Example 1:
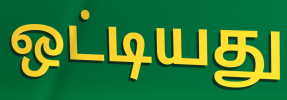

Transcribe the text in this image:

ஒட்டியது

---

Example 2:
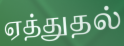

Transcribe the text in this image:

ஏத்துதல்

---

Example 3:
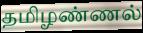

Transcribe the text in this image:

தமிழண்ணல்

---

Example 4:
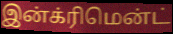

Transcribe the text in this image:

இன்க்ரிமென்ட்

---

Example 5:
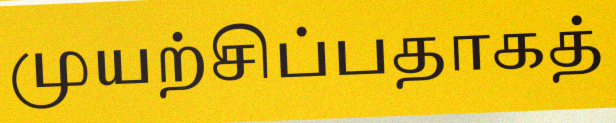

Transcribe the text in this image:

முயற்சிப்பதாகத்